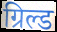
ग्रिल्ड